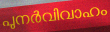
പുനർവിവാഹം